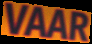
VAAR